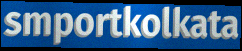
smportkolkata